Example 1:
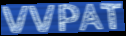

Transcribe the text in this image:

VVPAT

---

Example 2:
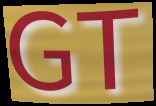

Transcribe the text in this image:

GT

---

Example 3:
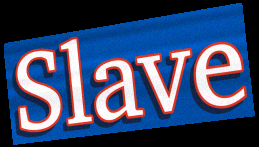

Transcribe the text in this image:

Slave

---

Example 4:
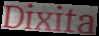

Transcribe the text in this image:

Dixita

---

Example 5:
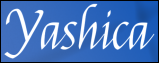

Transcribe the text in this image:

Yashica